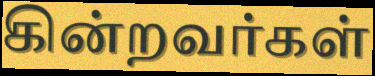
கின்றவர்கள்